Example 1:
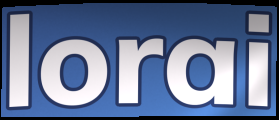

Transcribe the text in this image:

lorai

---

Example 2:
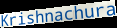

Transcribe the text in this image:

Krishnachura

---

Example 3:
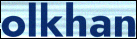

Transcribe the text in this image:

olkhan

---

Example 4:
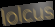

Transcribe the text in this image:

Iolcus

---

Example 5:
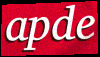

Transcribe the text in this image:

apde